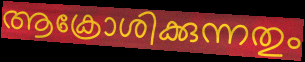
ആക്രോശിക്കുന്നതും